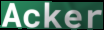
Acker